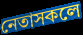
নেতাসকলে